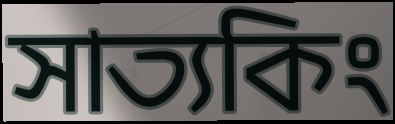
সাত্যকিং